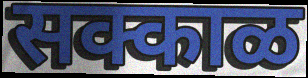
सक्काळ